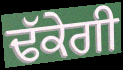
ਢੱਕੇਗੀ